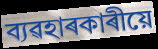
ব্যৱহাৰকাৰীয়ে